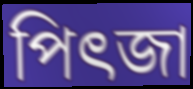
পিৎজা